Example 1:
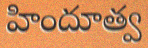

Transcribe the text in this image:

హిందూత్వ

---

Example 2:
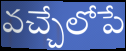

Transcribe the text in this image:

వచ్చేలోపే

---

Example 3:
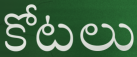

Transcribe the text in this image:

కోటలు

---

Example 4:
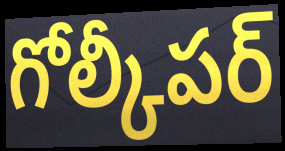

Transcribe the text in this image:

గోల్కీపర్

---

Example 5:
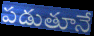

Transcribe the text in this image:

పడుతూనే